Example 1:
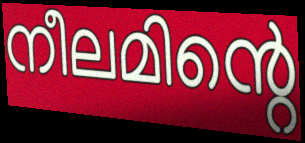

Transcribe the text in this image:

നീലമിന്റെ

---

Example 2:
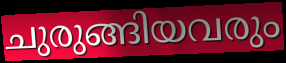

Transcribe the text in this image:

ചുരുങ്ങിയവരും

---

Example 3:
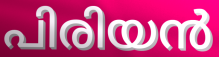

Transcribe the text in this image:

പിരിയൻ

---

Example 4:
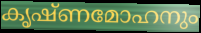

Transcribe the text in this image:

കൃഷ്ണമോഹനും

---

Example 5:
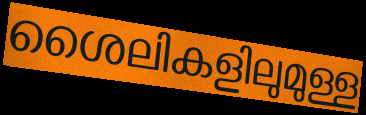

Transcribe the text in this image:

ശൈലികളിലുമുള്ള